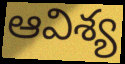
ఆవిశ్య